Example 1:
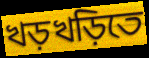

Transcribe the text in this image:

খড়খড়িতে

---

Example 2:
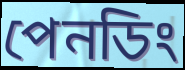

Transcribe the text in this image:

পেনডিং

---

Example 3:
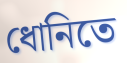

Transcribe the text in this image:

ধোনিতে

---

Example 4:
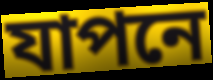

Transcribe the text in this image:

যাপনে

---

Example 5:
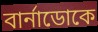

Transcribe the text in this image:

বার্নাডোকে